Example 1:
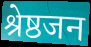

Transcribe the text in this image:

श्रेष्ठजन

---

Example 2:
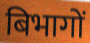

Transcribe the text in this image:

बिभागों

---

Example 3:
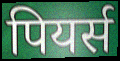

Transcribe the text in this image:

पियर्स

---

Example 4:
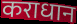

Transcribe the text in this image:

कराधान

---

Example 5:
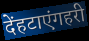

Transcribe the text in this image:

देंहटाएंगहरी